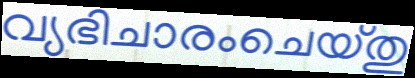
വ്യഭിചാരംചെയ്തു